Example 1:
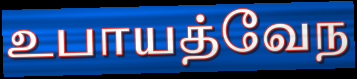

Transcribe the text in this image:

உபாயத்வேந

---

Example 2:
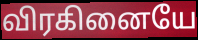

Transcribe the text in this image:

விரகினையே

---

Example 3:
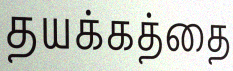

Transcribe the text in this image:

தயக்கத்தை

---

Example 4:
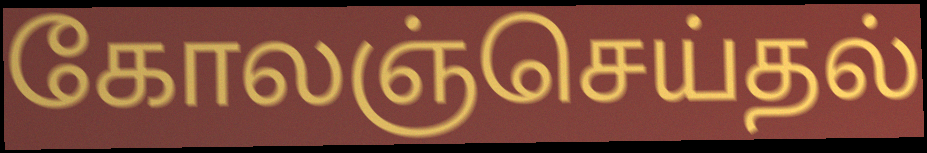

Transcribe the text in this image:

கோலஞ்செய்தல்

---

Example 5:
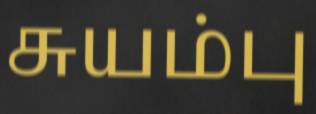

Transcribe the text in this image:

சுயம்பு